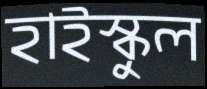
হাইস্কুল